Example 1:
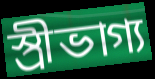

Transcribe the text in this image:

স্ত্রীভাগ্য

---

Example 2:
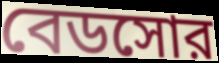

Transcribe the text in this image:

বেডসোর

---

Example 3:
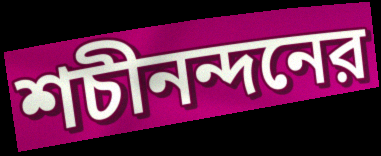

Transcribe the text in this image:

শচীনন্দনের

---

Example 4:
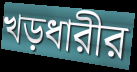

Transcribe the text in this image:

খড়ধারীর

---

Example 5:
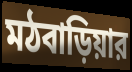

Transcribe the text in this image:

মঠবাড়িয়ার